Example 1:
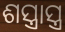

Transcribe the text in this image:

ଶସ୍ତ୍ରାସ୍ତ୍ର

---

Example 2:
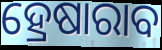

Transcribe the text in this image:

ହ୍ରେଷାରାବ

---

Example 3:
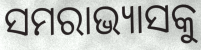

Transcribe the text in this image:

ସମରାଭ୍ୟାସକୁ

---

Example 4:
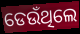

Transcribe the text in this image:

ଡେଉଁଥିଲେ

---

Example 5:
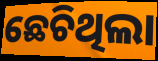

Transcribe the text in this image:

ଛେଚିଥିଲା